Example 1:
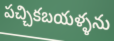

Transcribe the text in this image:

పచ్చికబయళ్ళను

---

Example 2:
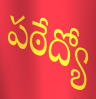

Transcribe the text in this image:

పఠేద్యో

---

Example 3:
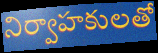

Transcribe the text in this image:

నిర్వాహకులతో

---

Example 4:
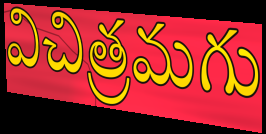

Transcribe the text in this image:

విచిత్రమగు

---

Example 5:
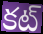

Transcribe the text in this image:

కట్